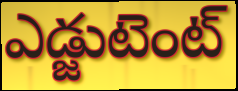
ఎడ్జుటెంట్